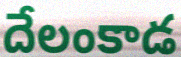
దేలంకాడ